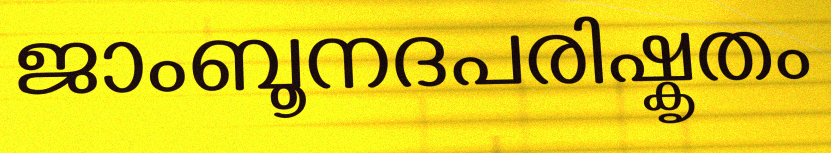
ജാംബൂനദപരിഷ്കൃതം